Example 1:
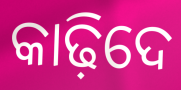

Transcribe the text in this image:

କାଢ଼ିଦେ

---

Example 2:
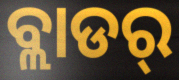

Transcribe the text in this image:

ବ୍ଲାଡର୍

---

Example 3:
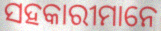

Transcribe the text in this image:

ସହକାରୀମାନେ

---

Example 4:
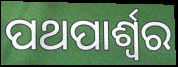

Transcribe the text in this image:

ପଥପାର୍ଶ୍ଵର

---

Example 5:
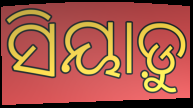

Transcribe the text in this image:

ସିୟାଡ଼ୁ